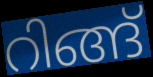
റിങ്ങ്